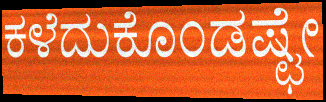
ಕಳೆದುಕೊಂಡಷ್ಟೇ